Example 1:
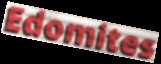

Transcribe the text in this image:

Edomites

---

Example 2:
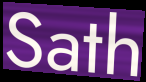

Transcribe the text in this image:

Sath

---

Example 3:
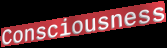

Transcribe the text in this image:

Consciousness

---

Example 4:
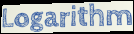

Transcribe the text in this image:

Logarithm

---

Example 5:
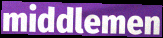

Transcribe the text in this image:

middlemen